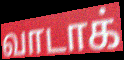
வாடாக்